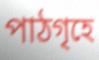
পাঠগৃহে